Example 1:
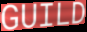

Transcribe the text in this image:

GUILD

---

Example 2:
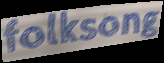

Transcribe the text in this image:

folksong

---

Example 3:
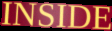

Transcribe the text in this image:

INSIDE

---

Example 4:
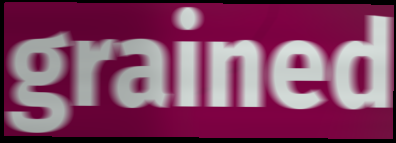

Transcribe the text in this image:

grained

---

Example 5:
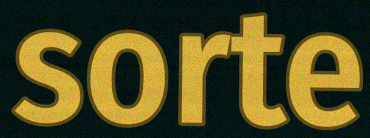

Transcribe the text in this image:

sorte